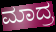
ಮಾದ್ರ